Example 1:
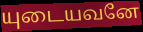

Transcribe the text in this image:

யுடையவனே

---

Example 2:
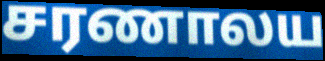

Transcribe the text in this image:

சரணாலய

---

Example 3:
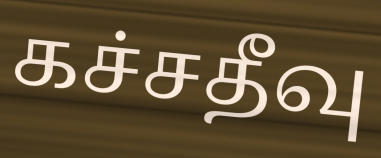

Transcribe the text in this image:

கச்சதீவு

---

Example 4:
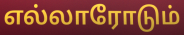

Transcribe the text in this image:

எல்லாரோடும்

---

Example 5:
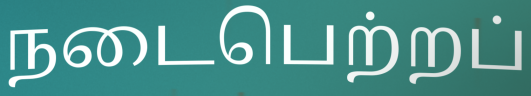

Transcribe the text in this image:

நடைபெற்றப்